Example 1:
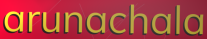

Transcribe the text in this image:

arunachala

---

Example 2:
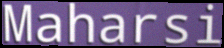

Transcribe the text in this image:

Maharsi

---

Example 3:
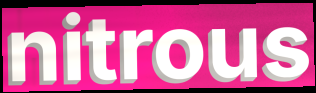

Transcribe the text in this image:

nitrous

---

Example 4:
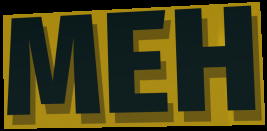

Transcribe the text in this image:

MEH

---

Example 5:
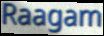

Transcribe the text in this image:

Raagam